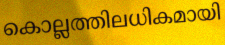
കൊല്ലത്തിലധികമായി